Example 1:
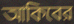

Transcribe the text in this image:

আকিবের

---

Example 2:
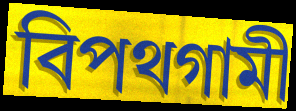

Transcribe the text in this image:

বিপথগামী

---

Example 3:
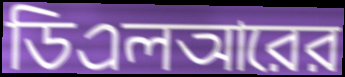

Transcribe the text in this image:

ডিএলআরের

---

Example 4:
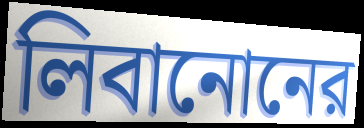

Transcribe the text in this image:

লিবানোনের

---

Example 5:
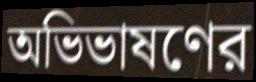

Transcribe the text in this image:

অভিভাষণের